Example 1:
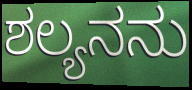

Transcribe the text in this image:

ಶಲ್ಯನನು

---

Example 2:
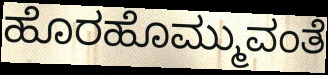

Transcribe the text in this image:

ಹೊರಹೊಮ್ಮುವಂತೆ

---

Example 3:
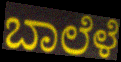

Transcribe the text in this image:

ಬಾಲೆಳೆ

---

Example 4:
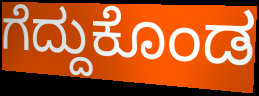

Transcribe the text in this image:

ಗೆದ್ದುಕೊಂಡ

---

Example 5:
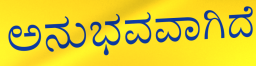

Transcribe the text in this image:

ಅನುಭವವಾಗಿದೆ